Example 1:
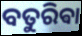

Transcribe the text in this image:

ବତୁରିଵା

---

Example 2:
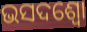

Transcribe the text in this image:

ଭସଦଶ୍ଵୋ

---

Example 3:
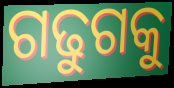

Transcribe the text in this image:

ଗଢୁଗକୁ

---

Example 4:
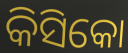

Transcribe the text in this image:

କିସିକୋ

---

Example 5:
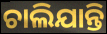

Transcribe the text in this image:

ଚାଲିଯାନ୍ତି